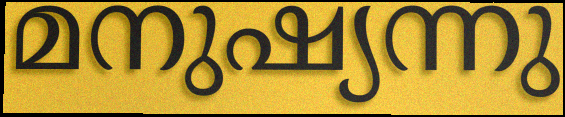
മനുഷ്യന്നു